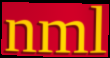
nml